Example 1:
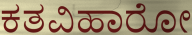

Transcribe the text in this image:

ಕತವಿಹಾರೋ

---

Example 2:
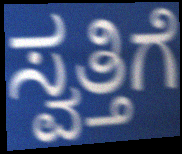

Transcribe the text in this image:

ಸ್ವತ್ತಿಗೆ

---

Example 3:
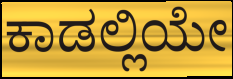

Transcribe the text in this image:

ಕಾಡಲ್ಲಿಯೇ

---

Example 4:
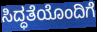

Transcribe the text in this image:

ಸಿದ್ಧತೆಯೊಂದಿಗೆ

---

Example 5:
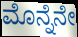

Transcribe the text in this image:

ಮೊನ್ನೆನೇ